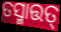
ତସ୍ମାତ୍ତତ୍